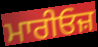
ਮਾਰੀਓਜ਼